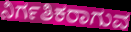
ನಿರ್ಗತಿಕರಾಗುವ